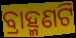
ବ୍ରାହ୍ମଣଟି